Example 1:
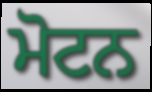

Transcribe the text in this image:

ਮੋਟਨ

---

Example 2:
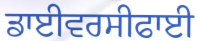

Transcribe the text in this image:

ਡਾਈਵਰਸੀਫਾਈ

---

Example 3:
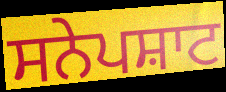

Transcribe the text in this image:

ਸਨੇਪਸ਼ਾਟ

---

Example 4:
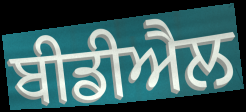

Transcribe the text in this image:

ਬੀਡੀਐਲ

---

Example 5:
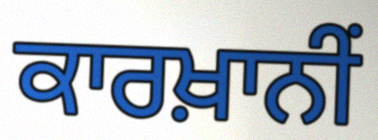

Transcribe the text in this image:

ਕਾਰਖ਼ਾਨੀਂ